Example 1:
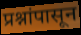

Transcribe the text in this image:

प्रश्नांपासून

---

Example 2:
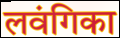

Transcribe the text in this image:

लवंगिका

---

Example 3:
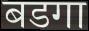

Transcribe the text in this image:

बडगा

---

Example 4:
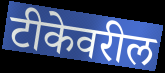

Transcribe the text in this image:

टीकेवरील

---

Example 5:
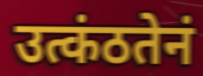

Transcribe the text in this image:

उत्कंठतेनं